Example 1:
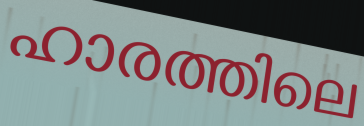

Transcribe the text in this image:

ഹാരത്തിലെ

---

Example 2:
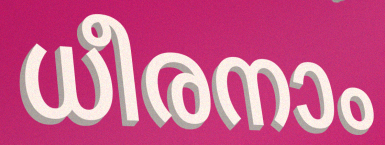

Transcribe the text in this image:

ധീരനാം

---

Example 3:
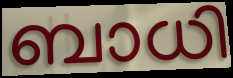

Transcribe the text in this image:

ബാധി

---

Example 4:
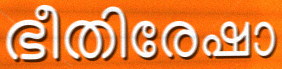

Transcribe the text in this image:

ഭീതിരേഷാ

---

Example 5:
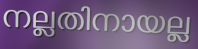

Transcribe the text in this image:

നല്ലതിനായല്ല